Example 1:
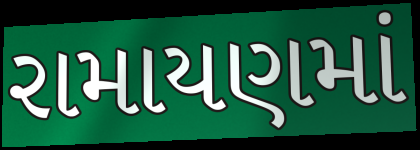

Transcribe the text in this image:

રામાયણમાં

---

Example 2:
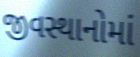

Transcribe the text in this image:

જીવસ્થાનોમાં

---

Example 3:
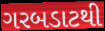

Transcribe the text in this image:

ગરબડાટથી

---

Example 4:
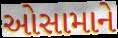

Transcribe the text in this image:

ઓસામાને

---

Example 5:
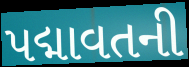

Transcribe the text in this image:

પદ્માવતની